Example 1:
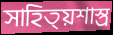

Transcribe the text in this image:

সাহিত্য়শাস্ত্ৰ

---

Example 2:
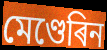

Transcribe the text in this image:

মেণ্ডেৰিন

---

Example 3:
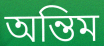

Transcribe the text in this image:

অন্তিম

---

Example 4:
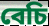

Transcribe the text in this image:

বেচি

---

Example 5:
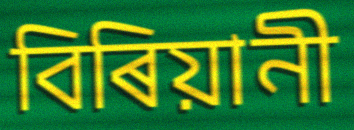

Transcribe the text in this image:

বিৰিয়ানী